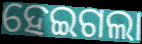
ହେଇଗଲା